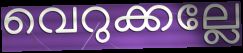
വെറുക്കല്ലേ